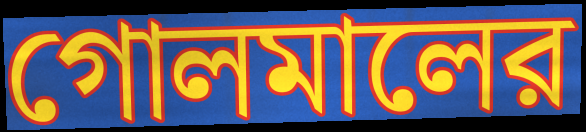
গোলমালের